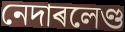
নেদাৰলেণ্ড